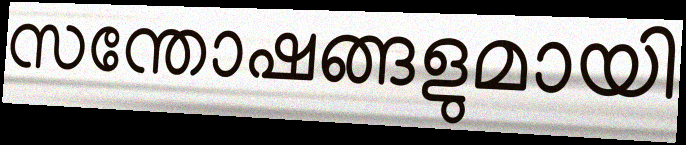
സന്തോഷങ്ങളുമായി